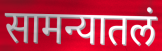
सामन्यातलं